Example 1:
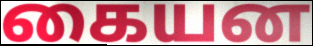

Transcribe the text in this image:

கையன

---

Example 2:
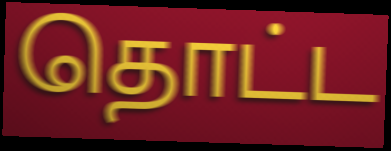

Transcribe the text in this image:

தொட்ட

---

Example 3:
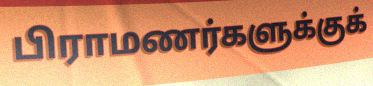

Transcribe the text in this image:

பிராமணர்களுக்குக்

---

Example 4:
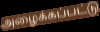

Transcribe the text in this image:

அழைக்கப்பட்டு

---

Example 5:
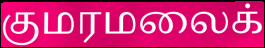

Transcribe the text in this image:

குமரமலைக்